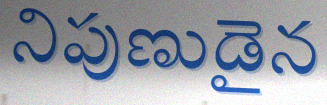
నిపుణుడైన